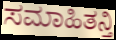
ಸಮಾಹಿತನ್ತಿ